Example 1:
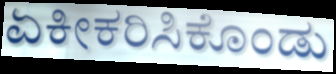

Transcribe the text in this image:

ಏಕೀಕರಿಸಿಕೊಂಡು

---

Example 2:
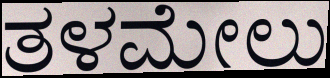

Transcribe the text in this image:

ತಳಮೇಲು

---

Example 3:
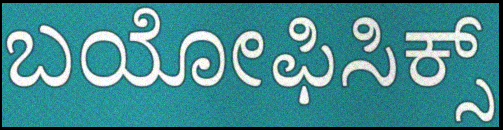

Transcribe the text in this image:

ಬಯೋಫಿಸಿಕ್ಸ್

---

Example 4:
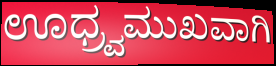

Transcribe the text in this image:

ಊಧ್ರ್ವಮುಖವಾಗಿ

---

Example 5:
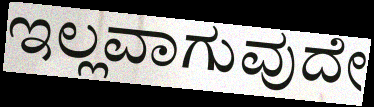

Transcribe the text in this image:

ಇಲ್ಲವಾಗುವುದೇ